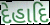
દેહાદિ